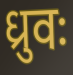
ध्रुवः